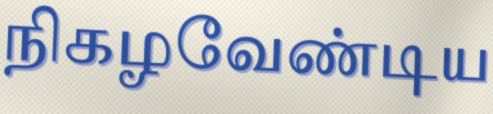
நிகழவேண்டிய